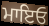
ਮਾਇਓ